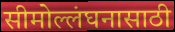
सीमोल्लंघनासाठी